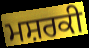
ਮਸ਼ਰਕੀ